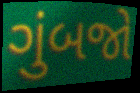
ગુંબજો